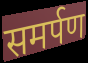
समर्पण